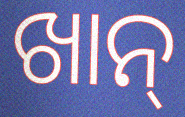
ଖାନ୍